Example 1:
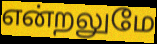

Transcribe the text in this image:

என்றலுமே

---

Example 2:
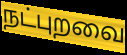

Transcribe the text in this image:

நட்புறவை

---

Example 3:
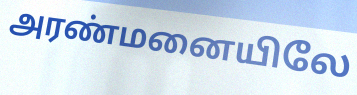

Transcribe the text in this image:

அரண்மனையிலே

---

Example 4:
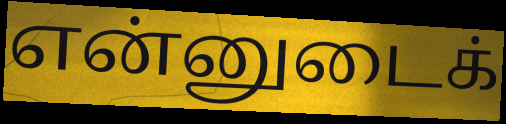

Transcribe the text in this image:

என்னுடைக்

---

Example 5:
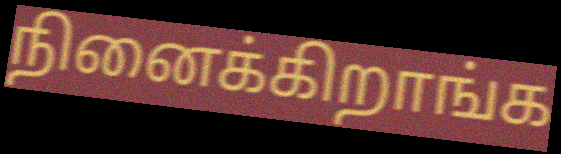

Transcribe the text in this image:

நினைக்கிறாங்க